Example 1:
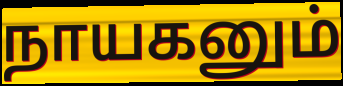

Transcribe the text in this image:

நாயகனும்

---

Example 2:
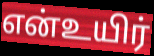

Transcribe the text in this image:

என்உயிர்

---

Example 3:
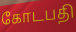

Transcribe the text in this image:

கோடபதி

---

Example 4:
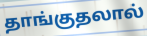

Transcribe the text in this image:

தாங்குதலால்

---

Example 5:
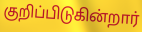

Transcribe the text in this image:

குறிப்பிடுகின்றார்